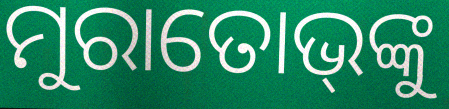
ମୁରାତୋଭ୍‌ଙ୍କୁ